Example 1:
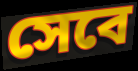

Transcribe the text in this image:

সেবে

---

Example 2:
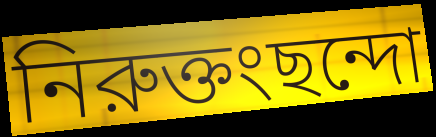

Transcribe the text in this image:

নিরুক্তংছন্দো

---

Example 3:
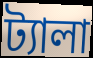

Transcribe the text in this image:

ট্যালা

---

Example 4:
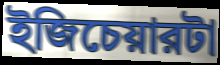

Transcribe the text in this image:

ইজিচেয়ারটা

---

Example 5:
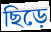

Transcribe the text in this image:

ছিড়ে